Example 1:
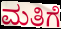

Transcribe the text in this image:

ಮತಿಗೆ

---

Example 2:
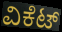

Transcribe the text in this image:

ವಿಕೆಟ್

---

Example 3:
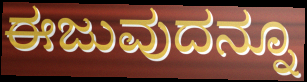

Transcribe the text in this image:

ಈಜುವುದನ್ನೂ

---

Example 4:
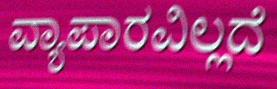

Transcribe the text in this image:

ವ್ಯಾಪಾರವಿಲ್ಲದೆ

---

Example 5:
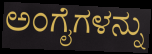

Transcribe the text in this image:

ಅಂಗೈಗಳನ್ನು